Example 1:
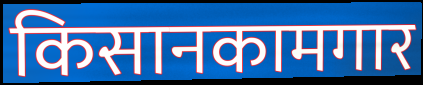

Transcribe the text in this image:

किसानकामगार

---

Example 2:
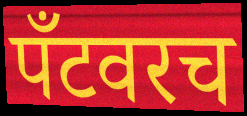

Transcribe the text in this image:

पँटवरच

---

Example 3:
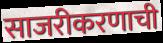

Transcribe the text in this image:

साजरीकरणाची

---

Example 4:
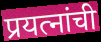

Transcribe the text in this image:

प्रयत्नांची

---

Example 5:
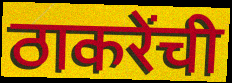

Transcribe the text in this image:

ठाकरेंची